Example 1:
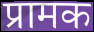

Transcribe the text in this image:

प्रामक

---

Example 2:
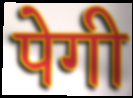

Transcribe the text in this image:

पेगी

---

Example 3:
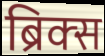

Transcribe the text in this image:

ब्रिक्‍स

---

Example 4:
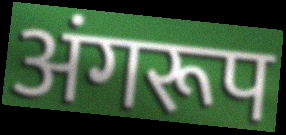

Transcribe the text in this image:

अंगरूप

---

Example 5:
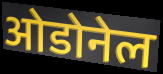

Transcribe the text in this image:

ओडोनेल